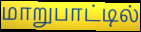
மாறுபாட்டில்